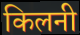
किलनी